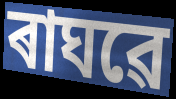
ৰাঘৱে